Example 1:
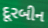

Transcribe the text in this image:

દૂરબીન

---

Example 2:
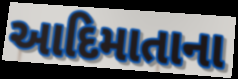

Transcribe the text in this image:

આદિમાતાના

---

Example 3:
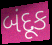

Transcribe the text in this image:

બંદૂક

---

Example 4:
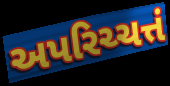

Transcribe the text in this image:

અપરિચ્ચત્તં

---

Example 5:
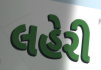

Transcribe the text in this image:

લહેરી